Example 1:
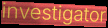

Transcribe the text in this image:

investigator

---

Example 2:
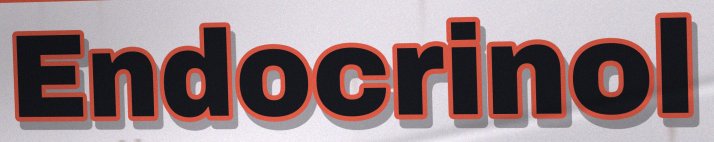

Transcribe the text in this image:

Endocrinol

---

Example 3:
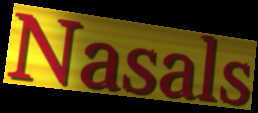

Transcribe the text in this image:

Nasals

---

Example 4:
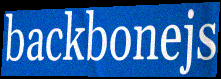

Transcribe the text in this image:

backbonejs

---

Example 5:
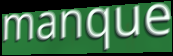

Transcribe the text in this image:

manque